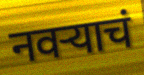
नवर्‍याचं